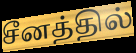
சீனத்தில்